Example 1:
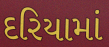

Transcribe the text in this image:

દરિયામાં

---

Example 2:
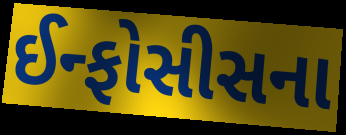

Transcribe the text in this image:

ઈન્ફોસીસના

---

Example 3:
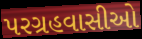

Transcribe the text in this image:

પરગ્રહવાસીઓ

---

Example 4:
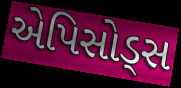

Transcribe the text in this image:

એપિસોડ્સ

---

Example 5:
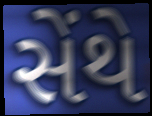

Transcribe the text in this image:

સેંથે